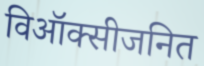
विऑक्सीजनित